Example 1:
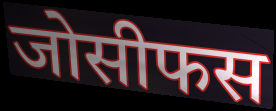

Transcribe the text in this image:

जोसीफस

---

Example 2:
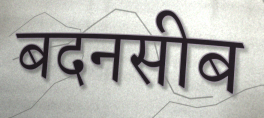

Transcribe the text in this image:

बदनसीब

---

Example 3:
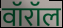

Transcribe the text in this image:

वॉरॉल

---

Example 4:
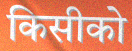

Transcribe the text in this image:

किसीको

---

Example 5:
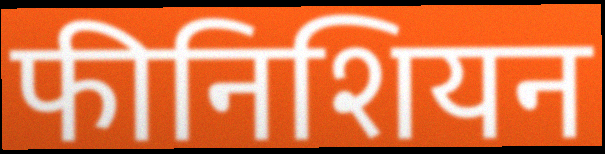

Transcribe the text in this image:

फीनिशियन